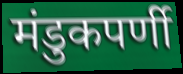
मंडुकपर्णी